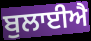
ਬੁਲਾਈਐ